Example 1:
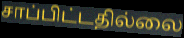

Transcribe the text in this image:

சாப்பிட்டதில்லை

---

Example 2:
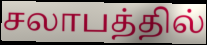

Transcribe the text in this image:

சலாபத்தில்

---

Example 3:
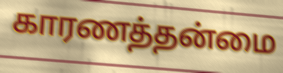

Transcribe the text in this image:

காரணத்தன்மை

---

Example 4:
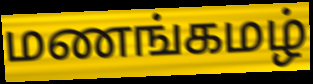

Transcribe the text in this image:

மணங்கமழ்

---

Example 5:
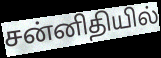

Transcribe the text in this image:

சன்னிதியில்